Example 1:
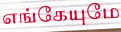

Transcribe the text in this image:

எங்கேயுமே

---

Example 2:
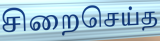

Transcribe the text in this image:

சிறைசெய்த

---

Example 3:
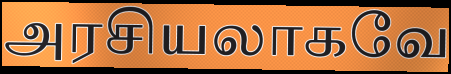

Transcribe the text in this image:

அரசியலாகவே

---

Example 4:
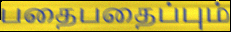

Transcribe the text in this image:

பதைபதைப்பும்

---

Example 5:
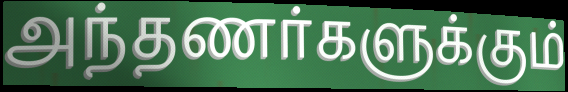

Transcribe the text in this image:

அந்தணர்களுக்கும்